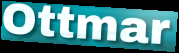
Ottmar